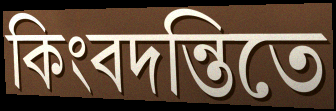
কিংবদন্তিতে